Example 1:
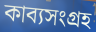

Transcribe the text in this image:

কাব্যসংগ্রহ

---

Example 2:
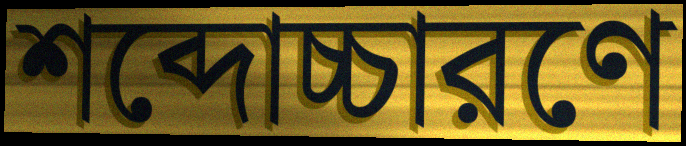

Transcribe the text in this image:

শব্দোচ্চারণে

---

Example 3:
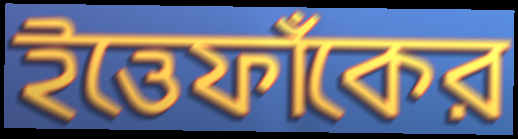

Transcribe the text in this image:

ইত্তেফাঁকের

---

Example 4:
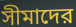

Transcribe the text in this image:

সীমাদের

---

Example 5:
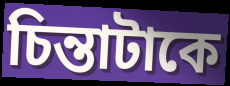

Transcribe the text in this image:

চিন্তাটাকে